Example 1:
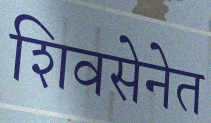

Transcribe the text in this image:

शिवसेनेत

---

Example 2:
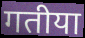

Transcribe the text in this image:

गतीया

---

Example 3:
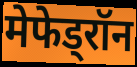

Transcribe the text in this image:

मेफेड्रॉन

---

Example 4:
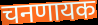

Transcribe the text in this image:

चनणायक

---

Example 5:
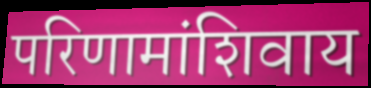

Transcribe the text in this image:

परिणामांशिवाय